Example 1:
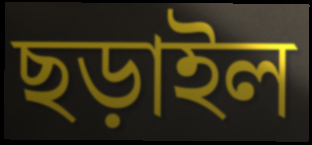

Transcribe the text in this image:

ছড়াইল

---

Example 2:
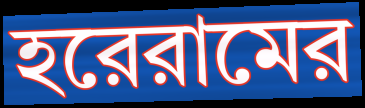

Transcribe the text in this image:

হরেরামের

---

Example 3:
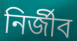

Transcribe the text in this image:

নির্জীব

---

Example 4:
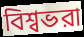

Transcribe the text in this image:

বিশ্বভরা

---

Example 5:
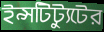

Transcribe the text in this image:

ইন্সটিট্যুটের